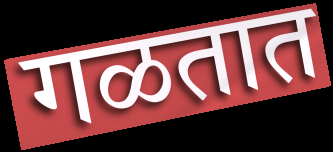
गळतात